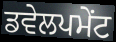
ਡਵੇਲਪਮੇਂਟ